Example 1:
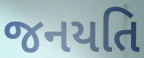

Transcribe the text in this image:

જનયતિ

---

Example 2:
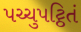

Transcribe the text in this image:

પચ્ચુપટ્ઠિતં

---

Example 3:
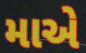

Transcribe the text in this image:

માએ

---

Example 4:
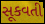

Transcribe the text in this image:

સૂકવતી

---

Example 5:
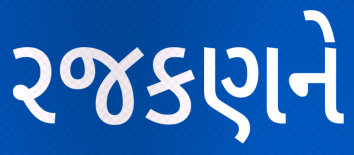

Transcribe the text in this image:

રજકણને